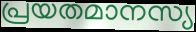
പ്രയതമാനസ്യ